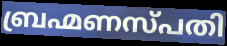
ബ്രഹ്മണസ്പതി